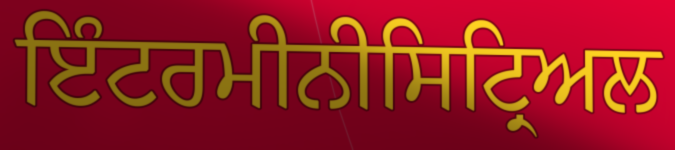
ਇੰਟਰਮੀਨੀਸਿਟ੍ਰਿਅਲ